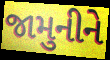
જામુનીને